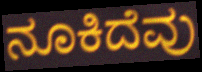
ನೂಕಿದೆವು